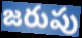
జరుపు